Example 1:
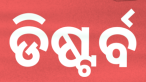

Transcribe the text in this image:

ଡିଷ୍ଟର୍ବ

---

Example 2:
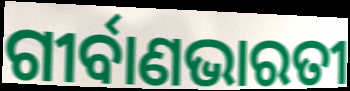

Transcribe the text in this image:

ଗୀର୍ବାଣଭାରତୀ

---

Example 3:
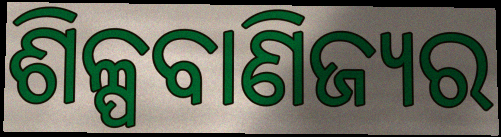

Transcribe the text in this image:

ଶିଳ୍ପବାଣିଜ୍ୟର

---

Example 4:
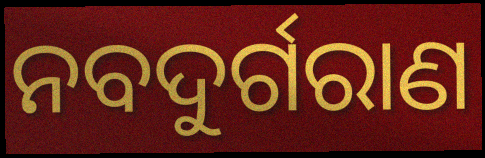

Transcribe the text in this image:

ନବଦୁର୍ଗରାଣ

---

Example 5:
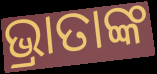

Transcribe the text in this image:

ଭ୍ରାତାଙ୍କ